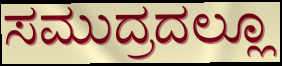
ಸಮುದ್ರದಲ್ಲೂ